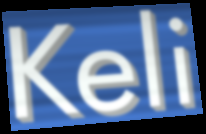
Keli